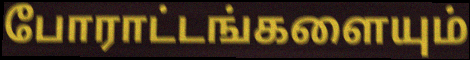
போராட்டங்களையும்